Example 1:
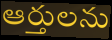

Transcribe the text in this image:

ఆర్తులను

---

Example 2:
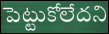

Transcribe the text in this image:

పెట్టుకోలేదని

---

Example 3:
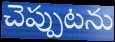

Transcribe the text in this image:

చెప్పుటను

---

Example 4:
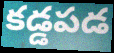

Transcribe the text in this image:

కడ్డపడ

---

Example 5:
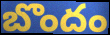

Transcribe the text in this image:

బొందం